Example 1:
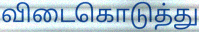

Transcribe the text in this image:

விடைகொடுத்து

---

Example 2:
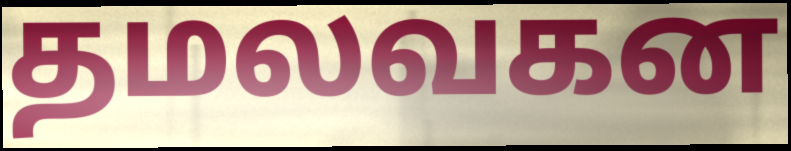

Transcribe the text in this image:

தமலவகன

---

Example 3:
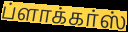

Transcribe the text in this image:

ப்ளாக்கர்ஸ்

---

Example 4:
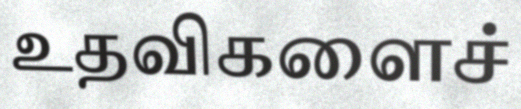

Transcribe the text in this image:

உதவிகளைச்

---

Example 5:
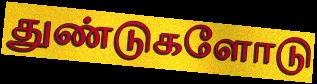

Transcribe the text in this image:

துண்டுகளோடு